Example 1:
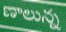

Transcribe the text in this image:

ణాలున్న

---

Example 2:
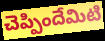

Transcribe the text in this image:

చెప్పిందేమిటి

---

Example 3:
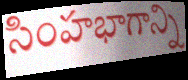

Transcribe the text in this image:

సింహభాగాన్ని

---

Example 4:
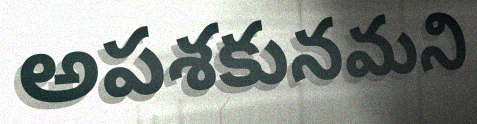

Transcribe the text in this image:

అపశకునమని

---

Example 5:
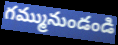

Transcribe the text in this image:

గమ్మునుండండి